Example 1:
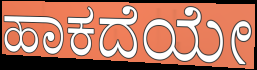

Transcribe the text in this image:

ಹಾಕದೆಯೇ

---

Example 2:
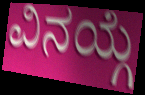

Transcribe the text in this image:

ವಿನಯ್ಗೆ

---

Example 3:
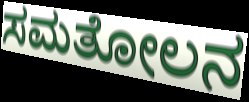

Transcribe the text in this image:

ಸಮತೋಲನ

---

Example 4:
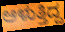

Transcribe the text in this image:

ಆಳುತ್ತಿದ್ದ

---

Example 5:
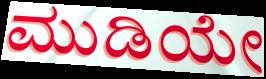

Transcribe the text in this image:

ಮುಡಿಯೇ